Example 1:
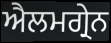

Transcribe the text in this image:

ਐਲਮਗ੍ਰੇਨ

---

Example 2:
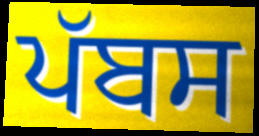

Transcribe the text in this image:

ਪੱਬਸ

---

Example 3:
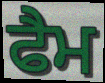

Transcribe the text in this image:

ਫੈਮ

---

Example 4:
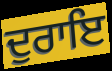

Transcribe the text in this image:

ਦੁਰਾਇ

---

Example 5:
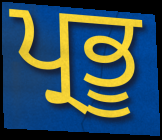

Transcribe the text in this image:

ਪ੍ਰ੍ਰਭੂ